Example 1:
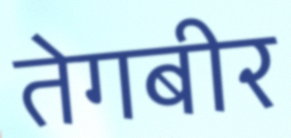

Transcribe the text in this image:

तेगबीर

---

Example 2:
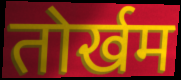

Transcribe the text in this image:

तोर्खम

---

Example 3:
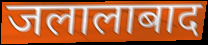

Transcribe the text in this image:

जलालाबाद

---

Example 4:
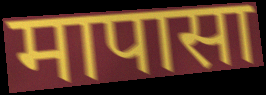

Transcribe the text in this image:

मापासा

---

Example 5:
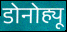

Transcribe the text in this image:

डोनोह्यू